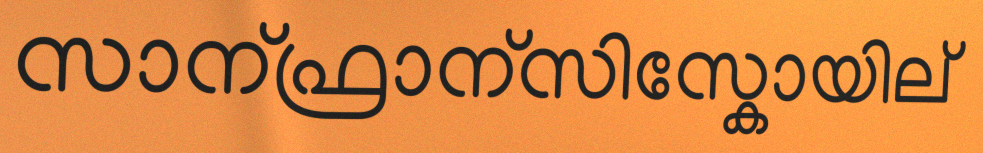
സാന്ഫ്രാന്സിസ്കോയില്